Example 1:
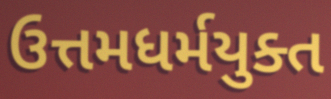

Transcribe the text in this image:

ઉત્તમધર્મયુક્ત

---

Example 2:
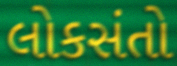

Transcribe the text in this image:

લોકસંતો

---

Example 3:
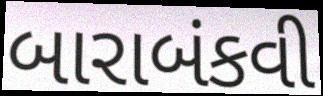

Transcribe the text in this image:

બારાબંકવી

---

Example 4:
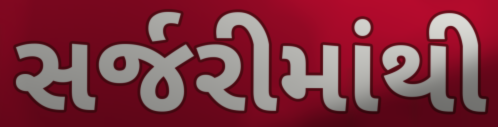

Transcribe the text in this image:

સર્જરીમાંથી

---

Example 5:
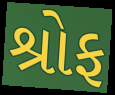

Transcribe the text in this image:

શ્રોફ